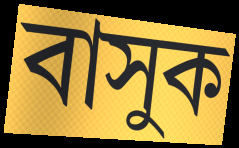
বাসুক